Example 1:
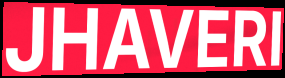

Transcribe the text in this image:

JHAVERI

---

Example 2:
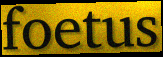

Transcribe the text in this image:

foetus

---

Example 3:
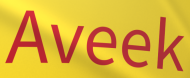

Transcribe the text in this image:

Aveek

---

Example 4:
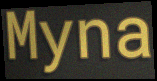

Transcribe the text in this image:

Myna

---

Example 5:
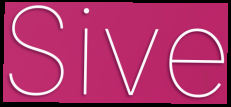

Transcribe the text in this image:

Sive